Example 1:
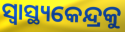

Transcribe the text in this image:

ସ୍ୱାସ୍ଥ୍ୟକେନ୍ଦ୍ରକୁ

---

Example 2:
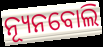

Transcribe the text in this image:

ନ୍ୟୂନବୋଲି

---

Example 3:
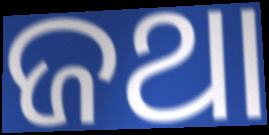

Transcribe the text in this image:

ଜଥା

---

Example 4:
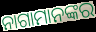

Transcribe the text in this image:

ନାଗାମାନଙ୍କର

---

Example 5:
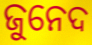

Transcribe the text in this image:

ଜୁନେଦ